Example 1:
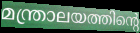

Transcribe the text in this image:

മന്ത്രാലയത്തിന്റെ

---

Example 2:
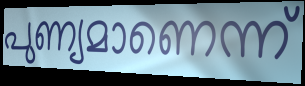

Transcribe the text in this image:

പുണ്യമാണെന്ന്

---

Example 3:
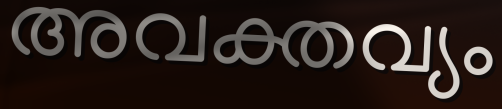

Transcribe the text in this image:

അവക്തവ്യം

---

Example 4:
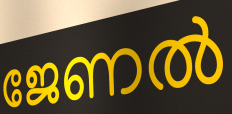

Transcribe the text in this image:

ജേണൽ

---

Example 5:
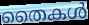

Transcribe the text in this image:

തൈകൾ